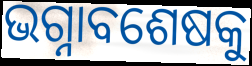
ଭଗ୍ନାବଶେଷକୁ